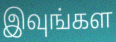
இவுங்கள